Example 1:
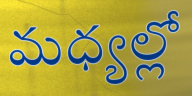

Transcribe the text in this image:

మధ్యల్లో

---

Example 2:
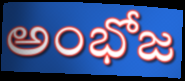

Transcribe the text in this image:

అంభోజ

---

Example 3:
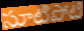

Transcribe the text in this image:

సూటిపోటి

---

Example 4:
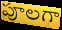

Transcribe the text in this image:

పూలగా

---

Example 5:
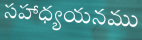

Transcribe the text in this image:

సహాధ్యయనము